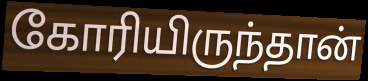
கோரியிருந்தான்